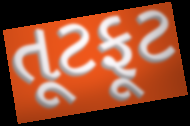
તૂટફૂટ